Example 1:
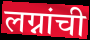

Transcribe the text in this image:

लग्नांची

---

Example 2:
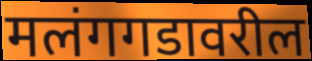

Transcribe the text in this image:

मलंगगडावरील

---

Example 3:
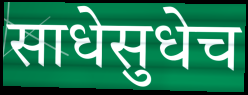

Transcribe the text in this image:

साधेसुधेच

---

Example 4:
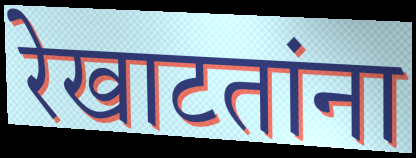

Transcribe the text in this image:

रेखाटतांना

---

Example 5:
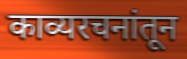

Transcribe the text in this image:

काव्यरचनांतून